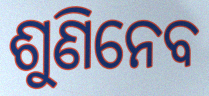
ଶୁଣିନେବ